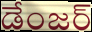
డేంజర్